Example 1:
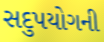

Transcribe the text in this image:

સદુપયોગની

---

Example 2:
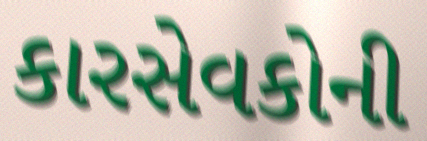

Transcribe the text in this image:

કારસેવકોની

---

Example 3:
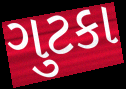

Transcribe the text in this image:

ગુટકા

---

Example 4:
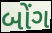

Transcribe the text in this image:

બોંગ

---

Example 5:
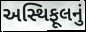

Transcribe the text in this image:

અસ્થિફૂલનું